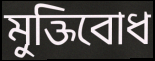
মুক্তিবোধ